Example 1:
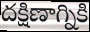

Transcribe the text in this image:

దక్షిణాగ్నికి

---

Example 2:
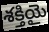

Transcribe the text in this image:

శక్తియై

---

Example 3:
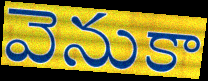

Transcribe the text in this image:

వెనుకా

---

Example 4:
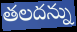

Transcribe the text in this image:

తలదన్ను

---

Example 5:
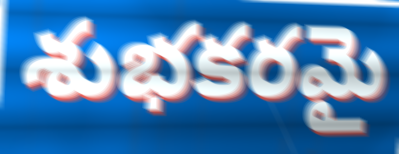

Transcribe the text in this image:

శుభకరమై